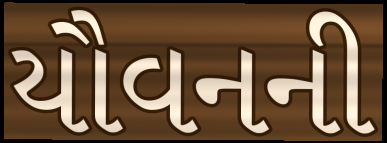
યૌવનની